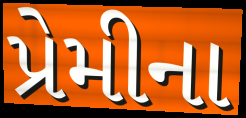
પ્રેમીના